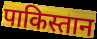
पाकिस्तान